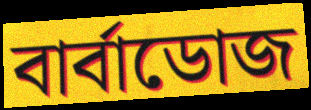
বার্বাডোজ